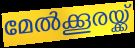
മേൽക്കൂരയ്ക്ക്